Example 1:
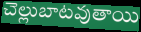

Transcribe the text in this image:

చెల్లుబాటవుతాయి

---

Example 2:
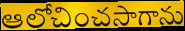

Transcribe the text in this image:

ఆలోచించసాగాను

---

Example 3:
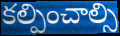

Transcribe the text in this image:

కల్పించాల్సి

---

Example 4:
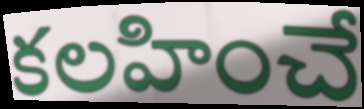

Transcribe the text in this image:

కలహించే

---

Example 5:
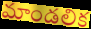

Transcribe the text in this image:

మాండలిక